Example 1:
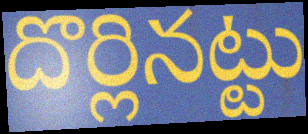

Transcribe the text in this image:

దొర్లినట్టు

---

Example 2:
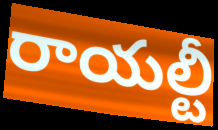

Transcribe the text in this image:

రాయల్టీ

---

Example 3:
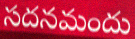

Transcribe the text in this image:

సదనమందు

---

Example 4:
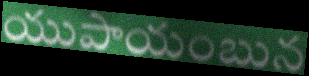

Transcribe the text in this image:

యుపాయంబున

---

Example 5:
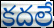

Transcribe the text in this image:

కదలే